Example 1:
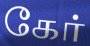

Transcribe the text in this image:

கேர்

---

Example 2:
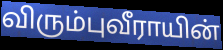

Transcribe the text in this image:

விரும்புவீராயின்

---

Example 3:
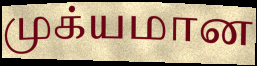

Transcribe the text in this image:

முக்யமான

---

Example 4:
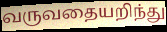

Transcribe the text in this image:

வருவதையறிந்து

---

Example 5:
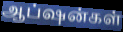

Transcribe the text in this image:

ஆப்ஷன்கள்